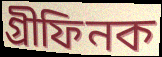
গ্ৰীফিনক